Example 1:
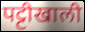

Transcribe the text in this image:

पट्टीखाली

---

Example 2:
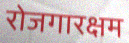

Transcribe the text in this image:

रोजगारक्षम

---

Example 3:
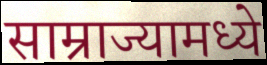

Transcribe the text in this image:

साम्राज्यामध्ये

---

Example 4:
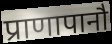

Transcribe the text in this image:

प्राणापानौ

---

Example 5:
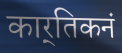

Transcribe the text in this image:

कार्तिकनं